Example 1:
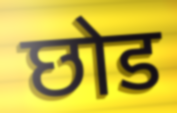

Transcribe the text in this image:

छोड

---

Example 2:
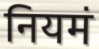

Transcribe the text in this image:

नियमं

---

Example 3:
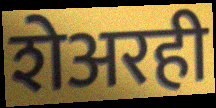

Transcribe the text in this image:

शेअरही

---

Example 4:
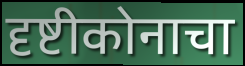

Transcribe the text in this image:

दृष्टीकोनाचा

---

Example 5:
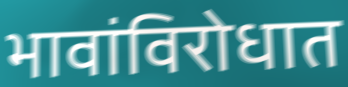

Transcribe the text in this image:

भावांविरोधात